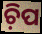
ଚ଼ିପ